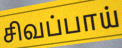
சிவப்பாய்